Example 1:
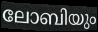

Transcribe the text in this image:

ലോബിയും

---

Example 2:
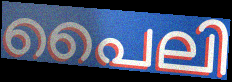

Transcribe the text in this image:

പൈലി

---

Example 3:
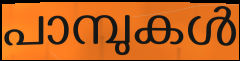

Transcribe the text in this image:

പാമ്പുകൾ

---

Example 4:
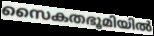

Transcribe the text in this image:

സൈകതഭൂമിയിൽ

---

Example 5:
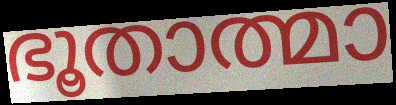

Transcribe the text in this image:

ഭൂതാത്മാ